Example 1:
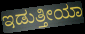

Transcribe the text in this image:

ಇಡುತ್ತೀಯಾ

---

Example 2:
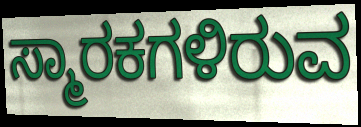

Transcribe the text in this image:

ಸ್ಮಾರಕಗಳಿರುವ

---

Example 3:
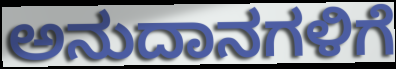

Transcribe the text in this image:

ಅನುದಾನಗಳಿಗೆ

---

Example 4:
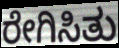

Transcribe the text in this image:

ರೇಗಿಸಿತು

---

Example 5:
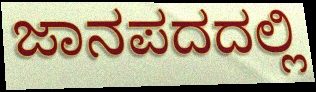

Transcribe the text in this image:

ಜಾನಪದದಲ್ಲಿ